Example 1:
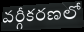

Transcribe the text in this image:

వర్గీకరణలో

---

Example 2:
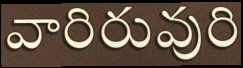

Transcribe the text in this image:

వారిరువురి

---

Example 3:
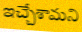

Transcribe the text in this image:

ఇచ్చేశామని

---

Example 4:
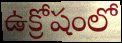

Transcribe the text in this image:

ఉక్రోషంలో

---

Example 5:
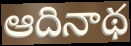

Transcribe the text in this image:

ఆదినాథ